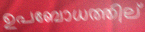
ഉപബോധത്തില്